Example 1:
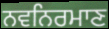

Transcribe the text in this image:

ਨਵਨਿਰਮਾਣ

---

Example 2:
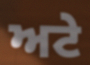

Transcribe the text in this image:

ਅਟੇ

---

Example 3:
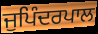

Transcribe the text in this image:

ਜੁਪਿੰਦਰਪਾਲ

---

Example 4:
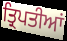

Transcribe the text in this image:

ਤ੍ਰਿਪਤੀਆਂ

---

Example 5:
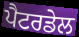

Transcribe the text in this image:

ਪੈਟਰਡੇਲ